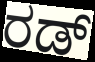
ರಡ್